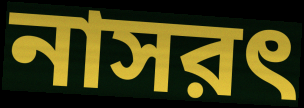
নাসরৎ